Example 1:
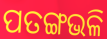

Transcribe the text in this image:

ପତଙ୍ଗଭଳି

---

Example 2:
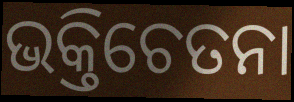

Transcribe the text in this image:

ଭକ୍ତିଚେତନା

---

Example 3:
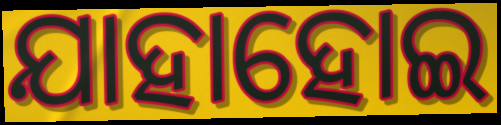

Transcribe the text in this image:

ଯାହାହୋଇ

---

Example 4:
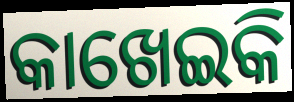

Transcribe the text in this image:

କାଖେଇକି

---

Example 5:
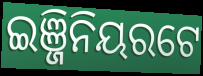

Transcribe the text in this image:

ଇଞ୍ଜିନିୟରଟେ